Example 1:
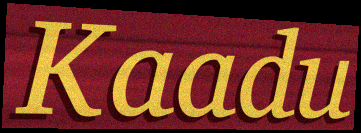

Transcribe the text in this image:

Kaadu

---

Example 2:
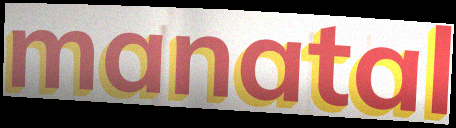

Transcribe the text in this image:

manatal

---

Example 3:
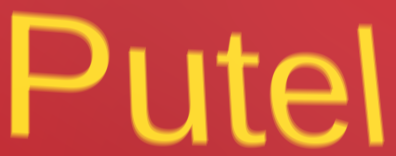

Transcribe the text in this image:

Putel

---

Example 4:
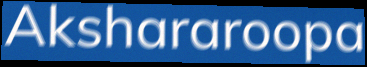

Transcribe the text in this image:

Akshararoopa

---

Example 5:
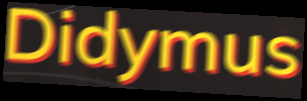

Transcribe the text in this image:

Didymus